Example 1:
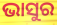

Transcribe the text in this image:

ଭାସୁର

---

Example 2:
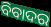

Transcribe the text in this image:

ବିବାଦର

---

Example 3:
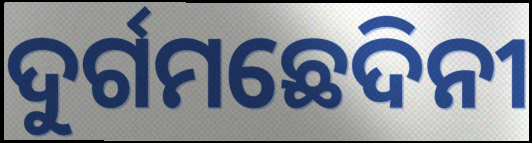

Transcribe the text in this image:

ଦୁର୍ଗମଛେଦିନୀ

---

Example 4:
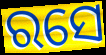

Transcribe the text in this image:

ରସେ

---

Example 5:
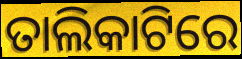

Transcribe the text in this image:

ତାଲିକାଟିରେ